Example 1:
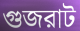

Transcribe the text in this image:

গুজরাট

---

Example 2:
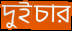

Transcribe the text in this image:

দুইচার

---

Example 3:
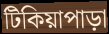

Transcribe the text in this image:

টিকিয়াপাড়া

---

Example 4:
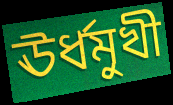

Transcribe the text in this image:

ঊর্ধমুখী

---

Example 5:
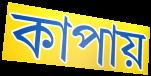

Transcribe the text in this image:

কাপায়